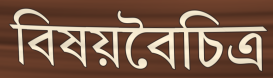
বিষয়বৈচিত্র